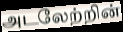
அடலேற்றின்